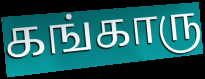
கங்காரு